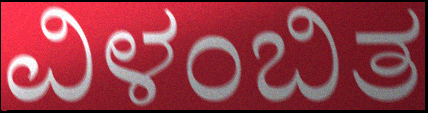
ವಿಳಂಬಿತ